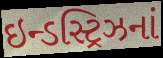
ઇન્ડસ્ટ્રિઝનાં